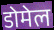
डोमेल